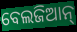
ବେଲଜିଆନ୍